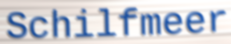
Schilfmeer